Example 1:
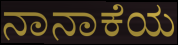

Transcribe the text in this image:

ನಾನಾಕೆಯ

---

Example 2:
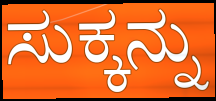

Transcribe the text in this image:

ಸುಕ್ಕನ್ನು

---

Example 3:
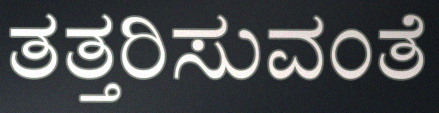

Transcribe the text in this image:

ತತ್ತರಿಸುವಂತೆ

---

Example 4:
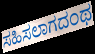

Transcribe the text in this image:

ಸಹಿಸಲಾಗದಂಥ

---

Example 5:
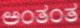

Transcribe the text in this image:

ಅಂತಂತ